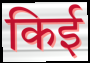
किई